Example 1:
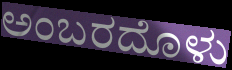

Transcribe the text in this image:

ಅಂಬರದೊಳು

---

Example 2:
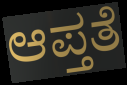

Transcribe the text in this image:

ಆಪ್ತತೆ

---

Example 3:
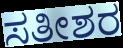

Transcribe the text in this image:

ಸತೀಶರ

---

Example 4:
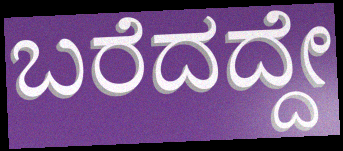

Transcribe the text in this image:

ಬರೆದದ್ದೇ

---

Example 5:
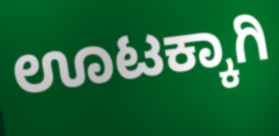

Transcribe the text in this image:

ಊಟಕ್ಕಾಗಿ